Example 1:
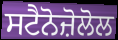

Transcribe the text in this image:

ਸਟੈਨੋਜ਼ੋਲੋਲ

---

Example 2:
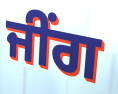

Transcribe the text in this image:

ਜੀਂਗ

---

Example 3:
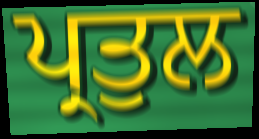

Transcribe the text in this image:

ਪ੍ਰਤੁਲ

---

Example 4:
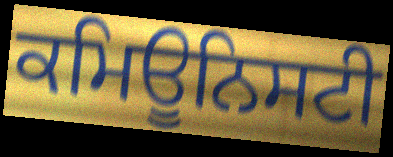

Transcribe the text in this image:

ਕਮਿਊਨਿਸਟੀ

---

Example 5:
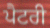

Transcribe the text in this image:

ਪੈਟਰੀ